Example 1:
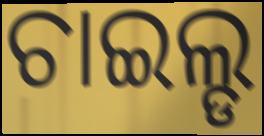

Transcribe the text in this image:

ଚାଇଲ୍ଡ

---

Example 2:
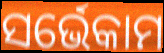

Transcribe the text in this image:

ସର୍ଭେକାମ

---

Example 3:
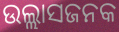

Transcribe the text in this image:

ଉଲ୍ଲାସଜନକ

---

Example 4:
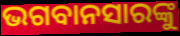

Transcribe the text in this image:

ଭଗବାନସାରଙ୍କୁ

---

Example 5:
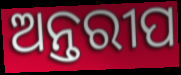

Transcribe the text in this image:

ଅନ୍ତରୀପ